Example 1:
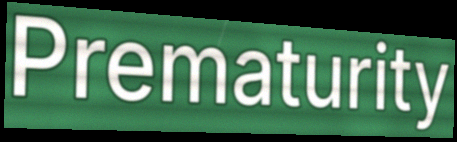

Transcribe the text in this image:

Prematurity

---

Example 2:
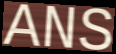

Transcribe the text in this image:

ANS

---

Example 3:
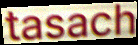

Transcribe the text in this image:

tasach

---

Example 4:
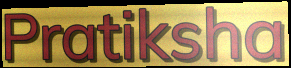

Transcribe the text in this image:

Pratiksha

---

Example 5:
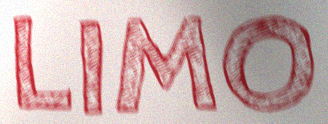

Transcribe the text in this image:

LIMO